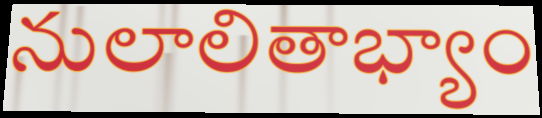
నులాలితాభ్యాం